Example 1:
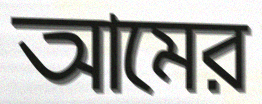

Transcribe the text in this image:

আমের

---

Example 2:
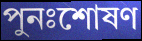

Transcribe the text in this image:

পুনঃশোষণ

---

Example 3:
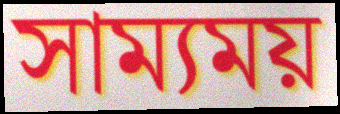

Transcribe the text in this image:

সাম্যময়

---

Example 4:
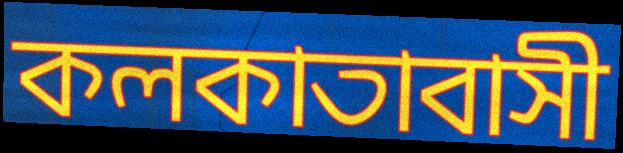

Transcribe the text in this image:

কলকাতাবাসী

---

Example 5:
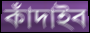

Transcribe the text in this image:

কাঁদাইব